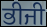
ਭੀਜੀ